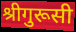
श्रीगुरूसी